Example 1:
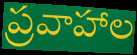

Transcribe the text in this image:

ప్రవాహాల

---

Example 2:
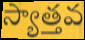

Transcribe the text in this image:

స్యాత్తవ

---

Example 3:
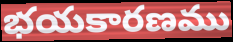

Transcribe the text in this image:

భయకారణము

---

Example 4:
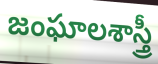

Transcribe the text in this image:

జంఘాలశాస్త్రీ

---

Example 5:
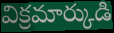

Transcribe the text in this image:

విక్రమార్కుడి